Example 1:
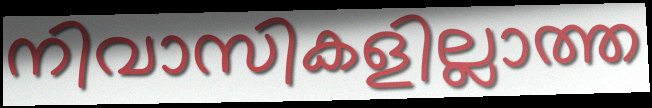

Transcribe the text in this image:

നിവാസികളില്ലാത്ത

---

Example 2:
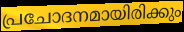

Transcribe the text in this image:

പ്രചോദനമായിരിക്കും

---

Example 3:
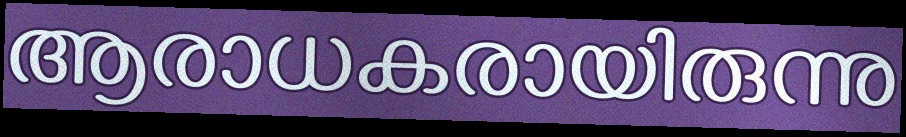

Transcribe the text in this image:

ആരാധകരായിരുന്നു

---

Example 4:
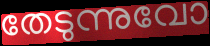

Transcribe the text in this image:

തേടുന്നുവോ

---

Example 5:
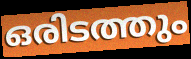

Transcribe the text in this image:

ഒരിടത്തും